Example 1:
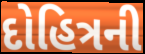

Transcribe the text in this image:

દોહિત્રની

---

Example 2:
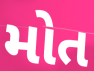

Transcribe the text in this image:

મોત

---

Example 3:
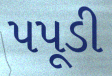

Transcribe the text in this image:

પપૂડી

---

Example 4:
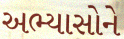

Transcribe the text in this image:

અભ્યાસોને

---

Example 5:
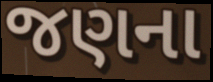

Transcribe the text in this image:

જણના